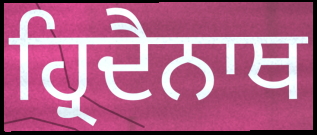
ਹ੍ਰਿਦੈਨਾਥ